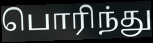
பொரிந்து